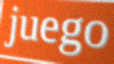
juego